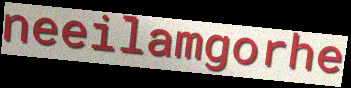
neeilamgorhe